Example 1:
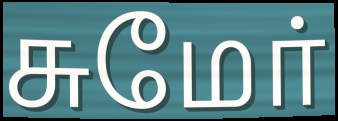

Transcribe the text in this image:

சுமேர்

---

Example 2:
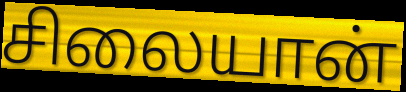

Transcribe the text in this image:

சிலையான்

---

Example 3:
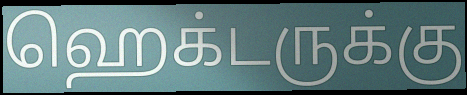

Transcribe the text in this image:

ஹெக்டருக்கு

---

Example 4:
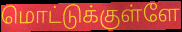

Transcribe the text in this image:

மொட்டுக்குள்ளே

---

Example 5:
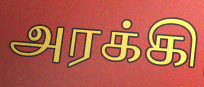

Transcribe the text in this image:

அரக்கி